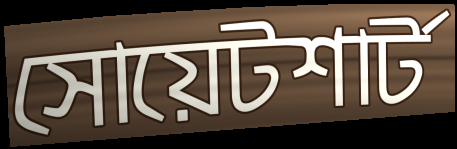
সোয়েটশার্ট